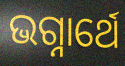
ଭଗ୍ନାର୍ଥେ